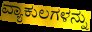
ವ್ಯಾಕುಲಗಳನ್ನು